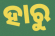
ହାରୁ